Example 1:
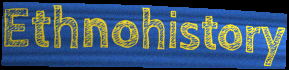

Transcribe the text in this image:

Ethnohistory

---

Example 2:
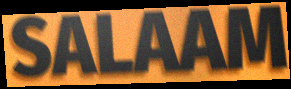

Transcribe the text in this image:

SALAAM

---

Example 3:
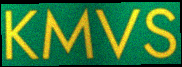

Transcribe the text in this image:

KMVS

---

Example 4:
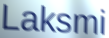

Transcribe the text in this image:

Laksmi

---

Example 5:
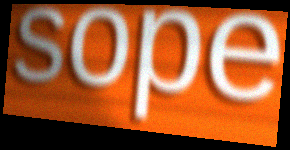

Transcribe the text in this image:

sope